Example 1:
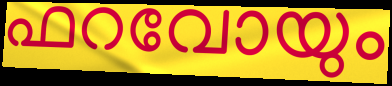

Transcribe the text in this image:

ഫറവോയും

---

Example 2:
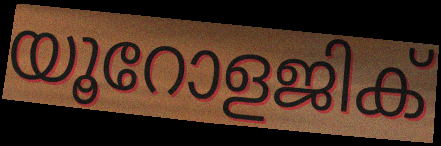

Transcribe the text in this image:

യൂറോളജിക്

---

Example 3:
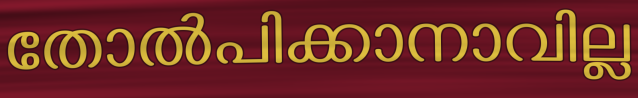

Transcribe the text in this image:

തോൽപിക്കാനാവില്ല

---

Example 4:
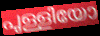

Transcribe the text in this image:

പുള്ളിയോ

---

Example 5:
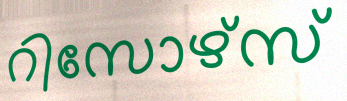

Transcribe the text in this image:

റിസോഴ്സ്